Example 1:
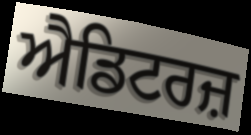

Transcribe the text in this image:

ਐਡਿਟਰਜ਼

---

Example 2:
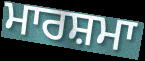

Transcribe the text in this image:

ਮਾਰਸ਼ਮਾ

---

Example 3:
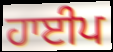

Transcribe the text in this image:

ਹਾਈਪ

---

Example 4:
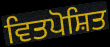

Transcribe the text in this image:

ਵਿਤਪੋਸ਼ਿਤ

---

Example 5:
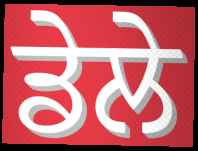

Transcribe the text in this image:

ਡੇਲੇ